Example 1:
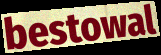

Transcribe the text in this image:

bestowal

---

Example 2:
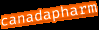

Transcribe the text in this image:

canadapharm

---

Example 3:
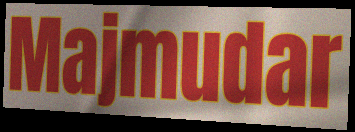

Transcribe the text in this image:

Majmudar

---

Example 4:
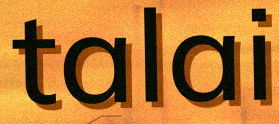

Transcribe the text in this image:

talai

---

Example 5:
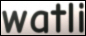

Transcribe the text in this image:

watli